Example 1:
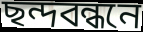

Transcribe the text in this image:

ছন্দবন্ধনে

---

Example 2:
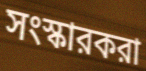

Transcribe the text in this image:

সংস্কারকরা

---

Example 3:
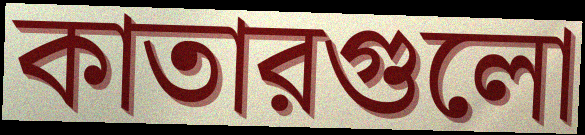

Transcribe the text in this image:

কাতারগুলো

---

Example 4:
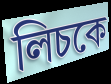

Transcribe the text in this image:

লিচকে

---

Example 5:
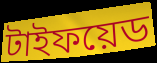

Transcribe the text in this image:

টাইফয়েড